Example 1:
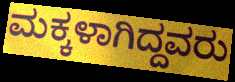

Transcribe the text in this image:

ಮಕ್ಕಳಾಗಿದ್ದವರು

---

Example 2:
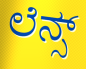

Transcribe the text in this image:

ಲೆನ್ಸ್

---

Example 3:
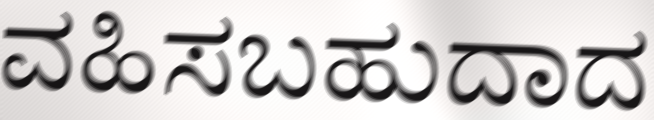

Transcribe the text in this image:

ವಹಿಸಬಹುದಾದ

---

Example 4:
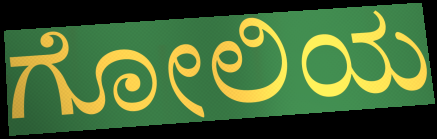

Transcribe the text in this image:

ಗೋಲಿಯ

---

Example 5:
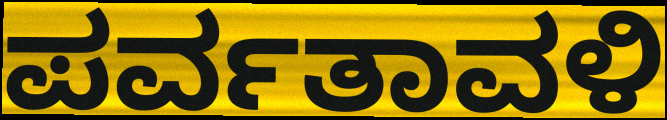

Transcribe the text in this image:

ಪರ್ವತಾವಳಿ